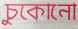
চুকোনো